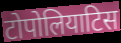
टोपोलियाटिस